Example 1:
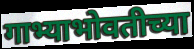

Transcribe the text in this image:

गाभ्याभोवतीच्या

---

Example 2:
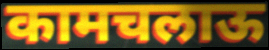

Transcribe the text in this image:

कामचलाऊ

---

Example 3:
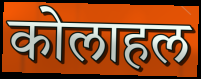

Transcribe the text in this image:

कोलाहल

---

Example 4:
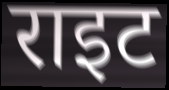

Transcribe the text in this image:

राइट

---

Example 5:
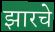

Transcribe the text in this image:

झारचे